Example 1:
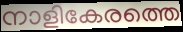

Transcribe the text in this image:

നാളികേരത്തെ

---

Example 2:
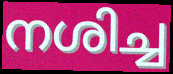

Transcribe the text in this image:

നശിച്ച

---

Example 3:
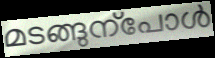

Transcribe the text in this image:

മടങ്ങുന്പോൾ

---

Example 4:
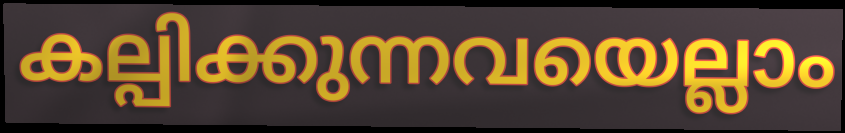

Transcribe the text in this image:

കല്പിക്കുന്നവയെല്ലാം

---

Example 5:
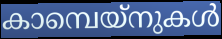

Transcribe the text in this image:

കാമ്പെയ്നുകൾ